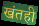
खंतही